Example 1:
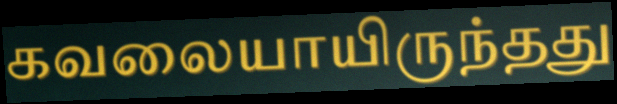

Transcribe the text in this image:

கவலையாயிருந்தது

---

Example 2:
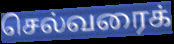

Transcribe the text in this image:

செல்வரைக்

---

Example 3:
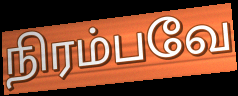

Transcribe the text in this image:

நிரம்பவே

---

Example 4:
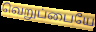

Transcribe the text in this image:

வெறுப்பையே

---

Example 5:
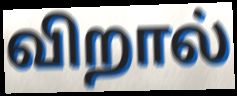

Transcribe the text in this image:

விறால்